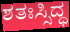
ಶತಃಸ್ಸಿದ್ಧ